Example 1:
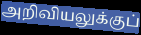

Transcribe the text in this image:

அறிவியலுக்குப்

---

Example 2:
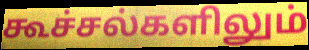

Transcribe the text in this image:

கூச்சல்களிலும்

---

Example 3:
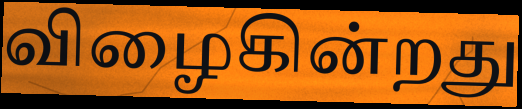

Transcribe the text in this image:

விழைகின்றது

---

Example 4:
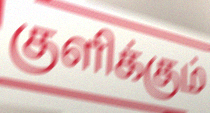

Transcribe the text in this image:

குளிக்கும்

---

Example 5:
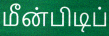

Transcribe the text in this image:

மீன்பிடிப்